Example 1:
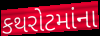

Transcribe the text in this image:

કથરોટમાંના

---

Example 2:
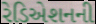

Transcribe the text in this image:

રેડિએશનની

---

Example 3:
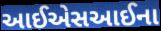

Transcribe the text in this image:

આઈએસઆઈના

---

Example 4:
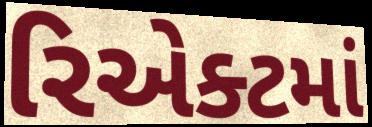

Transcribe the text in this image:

રિએક્ટમાં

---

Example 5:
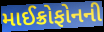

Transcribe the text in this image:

માઈક્રોફોનની